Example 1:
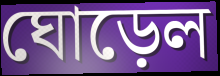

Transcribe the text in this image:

ঘোড়েল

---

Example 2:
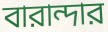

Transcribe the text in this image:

বারান্দার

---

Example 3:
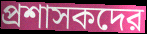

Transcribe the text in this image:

প্রশাসকদের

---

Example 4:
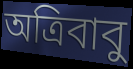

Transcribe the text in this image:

অত্রিবাবু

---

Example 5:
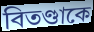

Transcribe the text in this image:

বিতণ্ডাকে